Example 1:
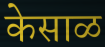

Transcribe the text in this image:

केसाळ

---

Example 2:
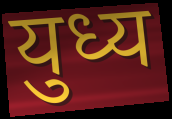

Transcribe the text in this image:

युध्य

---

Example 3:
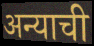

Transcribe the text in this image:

अन्याची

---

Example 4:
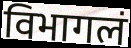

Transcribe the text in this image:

विभागलं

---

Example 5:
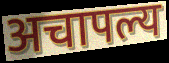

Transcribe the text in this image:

अचापल्य